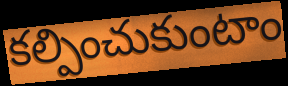
కల్పించుకుంటాం